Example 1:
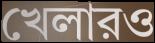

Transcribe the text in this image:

খেলারও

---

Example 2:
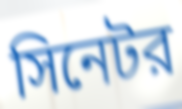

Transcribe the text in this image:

সিনেটর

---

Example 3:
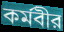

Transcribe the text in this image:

কর্মবীর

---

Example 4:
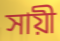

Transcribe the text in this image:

সায়ী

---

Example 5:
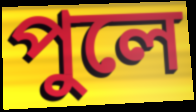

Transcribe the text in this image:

পুলে